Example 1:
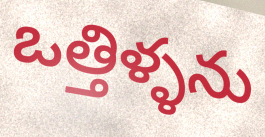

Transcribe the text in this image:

ఒత్తిళ్ళను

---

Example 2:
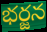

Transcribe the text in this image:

భర్జన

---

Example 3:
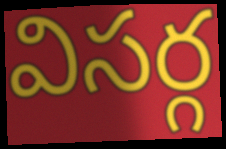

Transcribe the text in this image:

విసర్గ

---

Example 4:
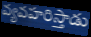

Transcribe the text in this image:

వ్యవహరిస్తాడు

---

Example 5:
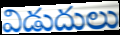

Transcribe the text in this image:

విడుదులు